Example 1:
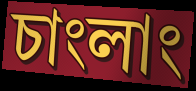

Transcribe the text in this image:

চাংলাং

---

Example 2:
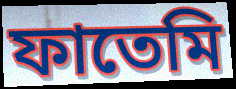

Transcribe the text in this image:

ফাতেমি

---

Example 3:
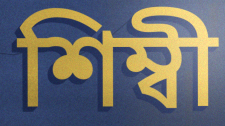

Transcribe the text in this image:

শিম্বী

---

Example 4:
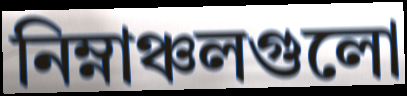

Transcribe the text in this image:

নিম্নাঞ্চলগুলো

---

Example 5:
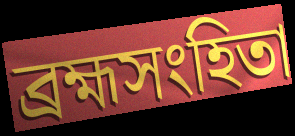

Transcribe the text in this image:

ব্রহ্মসংহিতা